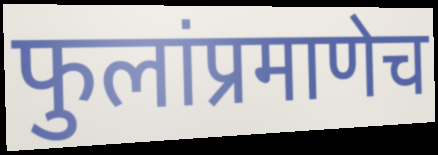
फुलांप्रमाणेच